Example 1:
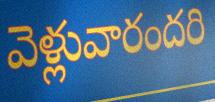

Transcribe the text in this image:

వెళ్లువారందరి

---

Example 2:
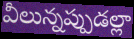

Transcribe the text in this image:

వీలున్నప్పుడల్లా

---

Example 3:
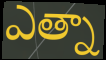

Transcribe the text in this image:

ఎత్నా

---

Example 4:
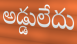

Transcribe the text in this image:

అడ్డులేదు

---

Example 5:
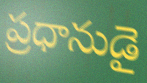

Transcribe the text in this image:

ప్రధానుడై